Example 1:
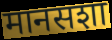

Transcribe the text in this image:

मानसशा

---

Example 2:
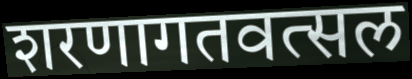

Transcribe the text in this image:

शरणागतवत्सल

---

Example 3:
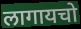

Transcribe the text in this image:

लागायचो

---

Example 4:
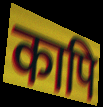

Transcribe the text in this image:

कापि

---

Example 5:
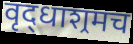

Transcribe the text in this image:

वृद्धाश्रमच